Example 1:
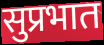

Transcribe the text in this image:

सुप्रभात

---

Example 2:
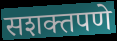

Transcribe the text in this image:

सशक्तपणे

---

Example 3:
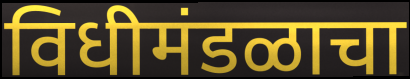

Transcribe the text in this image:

विधीमंडळाचा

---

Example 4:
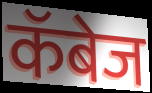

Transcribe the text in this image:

कॅबेज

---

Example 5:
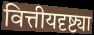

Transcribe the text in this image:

वित्तीयदृष्ट्या